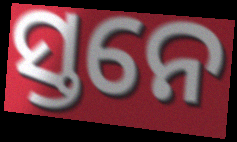
ସ୍ତନେ